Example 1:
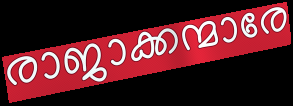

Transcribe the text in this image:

രാജാക്കന്മാരേ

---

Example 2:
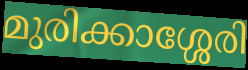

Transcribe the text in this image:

മുരിക്കാശ്ശേരി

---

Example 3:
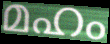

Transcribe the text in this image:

മഹം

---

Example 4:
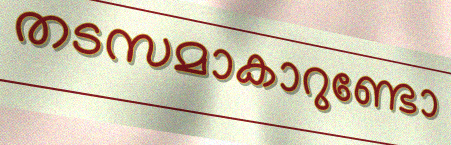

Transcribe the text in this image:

തടസമാകാറുണ്ടോ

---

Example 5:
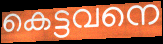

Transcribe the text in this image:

കെട്ടവനെ